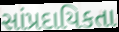
સાંપ્રદાયિકતા